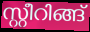
സ്റ്റീറിങ്ങ്